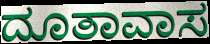
ದೂತಾವಾಸ